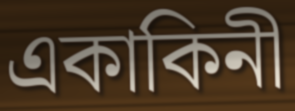
একাকিনী